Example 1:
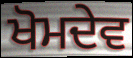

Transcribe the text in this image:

ਖੋਮਦੇਵ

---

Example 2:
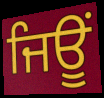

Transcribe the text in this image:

ਜਿਊਂ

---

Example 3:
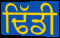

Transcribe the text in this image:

ਢਿੱਡੀ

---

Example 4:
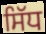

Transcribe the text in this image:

ਸਿੱਧ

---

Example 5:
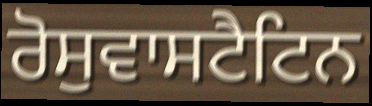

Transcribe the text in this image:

ਰੋਸੁਵਾਸਟੈਟਿਨ